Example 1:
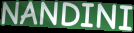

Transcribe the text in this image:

NANDINI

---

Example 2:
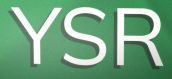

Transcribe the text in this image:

YSR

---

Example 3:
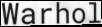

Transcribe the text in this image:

Warhol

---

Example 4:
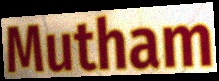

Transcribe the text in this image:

Mutham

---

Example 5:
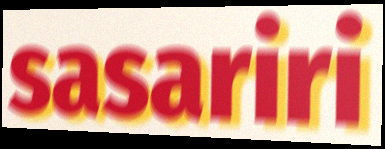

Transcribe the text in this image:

sasariri